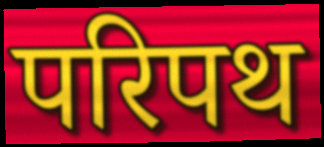
परिपथ